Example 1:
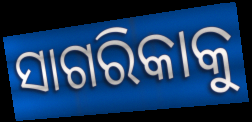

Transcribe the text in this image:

ସାଗରିକାକୁ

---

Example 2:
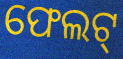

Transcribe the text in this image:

ଫେଲଟ୍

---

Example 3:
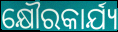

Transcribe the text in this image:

କ୍ଷୌରକାର୍ଯ୍ୟ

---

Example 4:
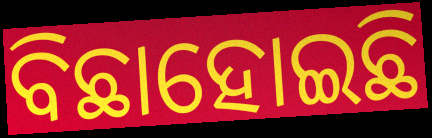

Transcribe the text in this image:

ବିଛାହୋଇଛି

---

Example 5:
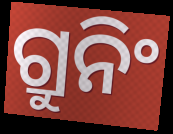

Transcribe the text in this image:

ଗ୍ରୁନିଂ